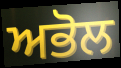
ਅਭੋਲ